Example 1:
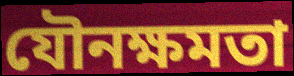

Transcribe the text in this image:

যৌনক্ষমতা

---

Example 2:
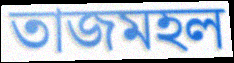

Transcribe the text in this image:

তাজমহল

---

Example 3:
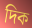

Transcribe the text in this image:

দিক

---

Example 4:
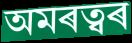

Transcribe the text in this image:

অমৰত্বৰ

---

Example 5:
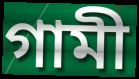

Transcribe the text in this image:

গামী